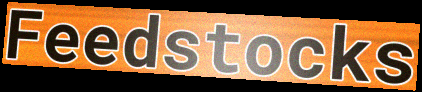
Feedstocks